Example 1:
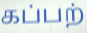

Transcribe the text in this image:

கப்பற்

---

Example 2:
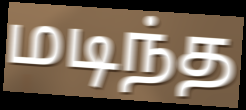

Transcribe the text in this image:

மடிந்த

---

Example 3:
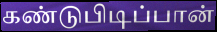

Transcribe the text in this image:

கண்டுபிடிப்பான்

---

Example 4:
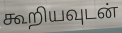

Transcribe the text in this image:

கூறியவுடன்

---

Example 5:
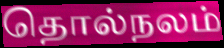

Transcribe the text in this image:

தொல்நலம்